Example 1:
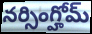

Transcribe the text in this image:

నర్సింగ్హోమ్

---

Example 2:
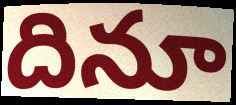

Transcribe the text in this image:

దినూ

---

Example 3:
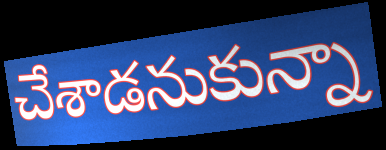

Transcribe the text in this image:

చేశాడనుకున్నా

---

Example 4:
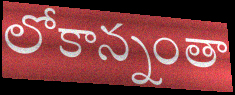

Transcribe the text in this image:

లోకాన్నంతా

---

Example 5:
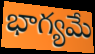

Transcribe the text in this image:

భాగ్యమే